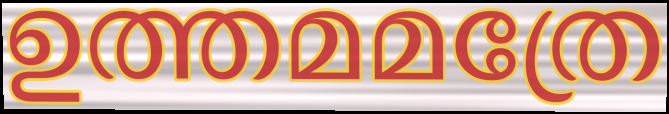
ഉത്തമമത്രേ